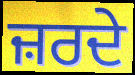
ਜ਼ਰਦੇ